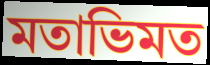
মতাভিমত